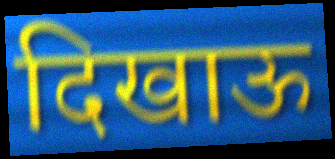
दिखाऊ